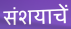
संशयाचें